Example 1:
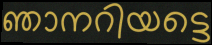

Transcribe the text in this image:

ഞാനറിയട്ടെ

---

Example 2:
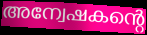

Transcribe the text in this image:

അന്വേഷകന്റെ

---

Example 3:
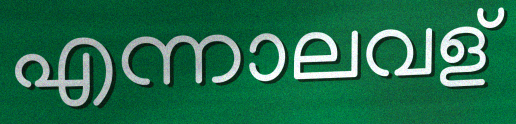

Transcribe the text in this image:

എന്നാലവള്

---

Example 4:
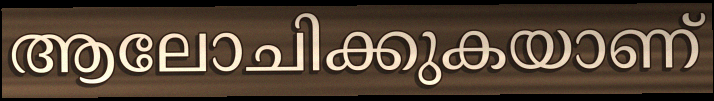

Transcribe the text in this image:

ആലോചിക്കുകയാണ്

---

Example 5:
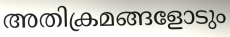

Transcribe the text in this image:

അതിക്രമങ്ങളോടും